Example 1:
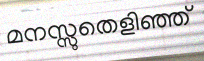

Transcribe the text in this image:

മനസ്സുതെളിഞ്ഞ്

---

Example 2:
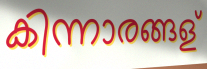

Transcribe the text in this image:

കിന്നാരങ്ങള്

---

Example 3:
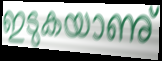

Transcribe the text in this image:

ഇടുകയാണു്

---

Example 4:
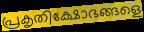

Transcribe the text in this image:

പ്രകൃതിക്ഷോഭങ്ങളെ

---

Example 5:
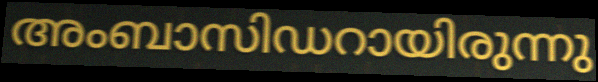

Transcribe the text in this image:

അംബാസിഡറായിരുന്നു